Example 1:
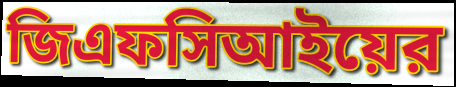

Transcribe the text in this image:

জিএফসিআইয়ের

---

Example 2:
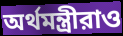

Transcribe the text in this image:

অর্থমন্ত্রীরাও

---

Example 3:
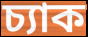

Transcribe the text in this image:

চ্যাক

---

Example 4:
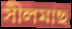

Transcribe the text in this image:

সীলমাছ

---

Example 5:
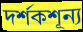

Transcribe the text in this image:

দর্শকশূন্য